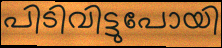
പിടിവിട്ടുപോയി